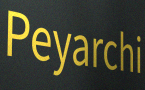
Peyarchi